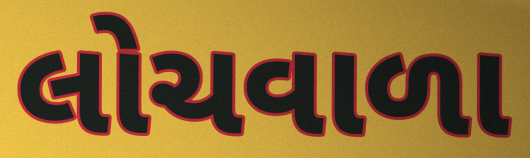
લોચવાળા